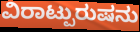
ವಿರಾಟ್ಪುರುಷನು